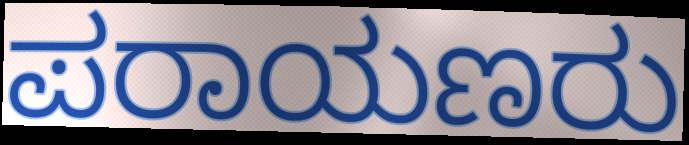
ಪರಾಯಣರು